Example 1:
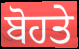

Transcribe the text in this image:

ਬੋਹਤੇ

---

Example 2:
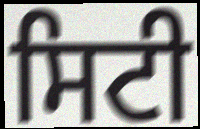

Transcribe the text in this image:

ਸਿਟੀ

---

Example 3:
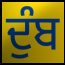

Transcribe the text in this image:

ਦੁੰਬ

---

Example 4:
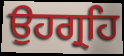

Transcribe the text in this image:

ਉਹਗ੍ਰਹਿ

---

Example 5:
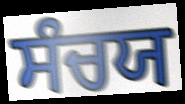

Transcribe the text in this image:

ਸੰਚਯ